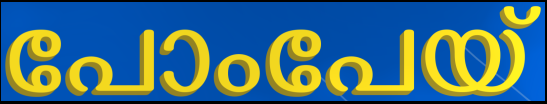
പോംപേയ്